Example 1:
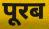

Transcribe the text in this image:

पूरब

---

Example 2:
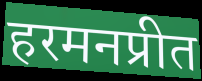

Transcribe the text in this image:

हरमनप्रीत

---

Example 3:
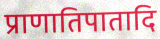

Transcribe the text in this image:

प्राणातिपातादि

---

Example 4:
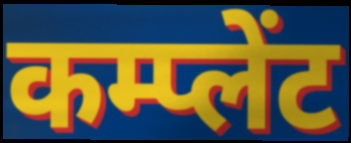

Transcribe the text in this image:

कम्प्लेंट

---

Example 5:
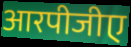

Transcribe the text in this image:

आरपीजीए